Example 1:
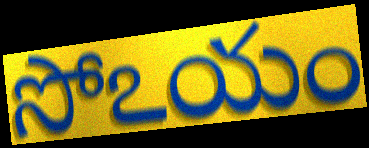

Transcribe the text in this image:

సోఽయం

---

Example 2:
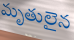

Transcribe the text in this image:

మృతులైన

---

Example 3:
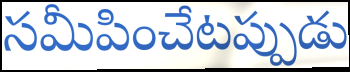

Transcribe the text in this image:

సమీపించేటప్పుడు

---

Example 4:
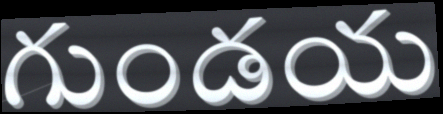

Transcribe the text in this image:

గుండయ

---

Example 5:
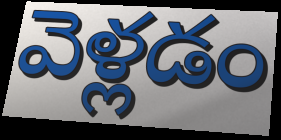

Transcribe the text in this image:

వెళ్లడం